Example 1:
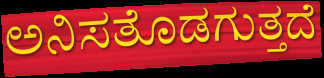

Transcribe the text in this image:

ಅನಿಸತೊಡಗುತ್ತದೆ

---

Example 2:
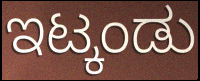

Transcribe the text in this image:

ಇಟ್ಕಂಡು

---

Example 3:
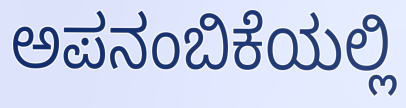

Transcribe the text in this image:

ಅಪನಂಬಿಕೆಯಲ್ಲಿ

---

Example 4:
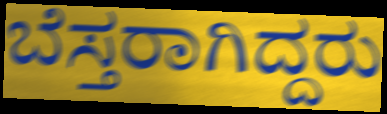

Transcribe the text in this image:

ಬೆಸ್ತರಾಗಿದ್ದರು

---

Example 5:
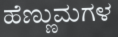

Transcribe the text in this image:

ಹೆಣ್ಣುಮಗಳ